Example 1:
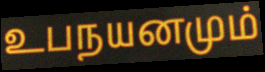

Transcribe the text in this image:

உபநயனமும்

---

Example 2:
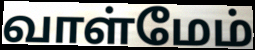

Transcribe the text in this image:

வாள்மேம்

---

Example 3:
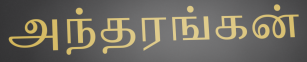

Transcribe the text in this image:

அந்தரங்கன்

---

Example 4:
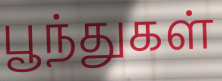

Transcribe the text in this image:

பூந்துகள்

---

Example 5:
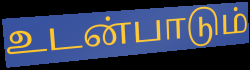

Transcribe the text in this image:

உடன்பாடும்